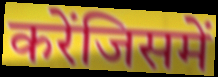
करेंजिसमें